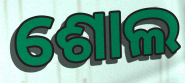
ଶୋଲ